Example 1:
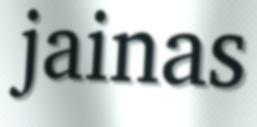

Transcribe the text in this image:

jainas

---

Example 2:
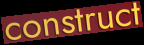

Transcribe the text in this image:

construct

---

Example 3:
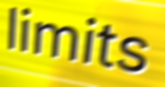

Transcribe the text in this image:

limits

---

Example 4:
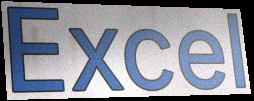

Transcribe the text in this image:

Excel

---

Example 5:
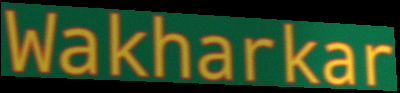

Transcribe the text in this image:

Wakharkar